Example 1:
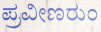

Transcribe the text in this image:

ಪ್ರವೀಣರುಂ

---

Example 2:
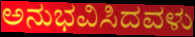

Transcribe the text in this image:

ಅನುಭವಿಸಿದವಳು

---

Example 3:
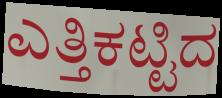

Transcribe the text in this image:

ಎತ್ತಿಕಟ್ಟಿದ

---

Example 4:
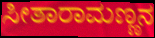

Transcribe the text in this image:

ಸೀತಾರಾಮಣ್ಣನ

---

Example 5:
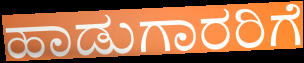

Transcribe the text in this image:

ಹಾಡುಗಾರರಿಗೆ